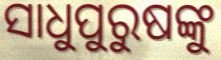
ସାଧୁପୁରୁଷଙ୍କୁ